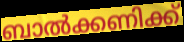
ബാൽക്കണിക്ക്